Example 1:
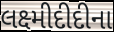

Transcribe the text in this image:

લક્ષ્મીદીદીના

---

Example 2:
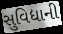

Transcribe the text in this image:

સુવિદ્યાની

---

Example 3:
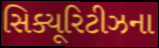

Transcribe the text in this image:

સિક્યૂરિટીઝના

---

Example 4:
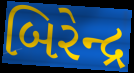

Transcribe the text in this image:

બિરેન્દ્ર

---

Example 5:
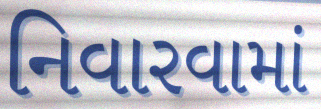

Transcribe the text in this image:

નિવારવામાં